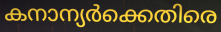
കനാന്യർക്കെതിരെ